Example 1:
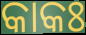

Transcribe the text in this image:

କାକଃ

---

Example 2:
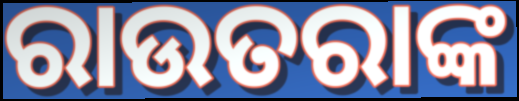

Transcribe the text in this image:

ରାଉତରାଙ୍କ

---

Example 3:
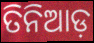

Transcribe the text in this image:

ତିନିଆଡ଼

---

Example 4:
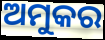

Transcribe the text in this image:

ଅମୁକର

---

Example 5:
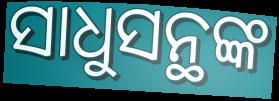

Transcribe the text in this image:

ସାଧୁସନ୍ଥଙ୍କ